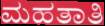
ಮಹತಾತಿ